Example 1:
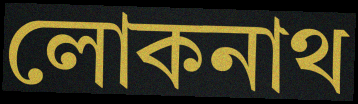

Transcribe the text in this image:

লোকনাথ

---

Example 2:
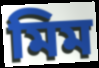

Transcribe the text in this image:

মিম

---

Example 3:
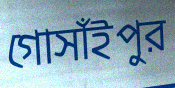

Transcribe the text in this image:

গোসাঁইপুর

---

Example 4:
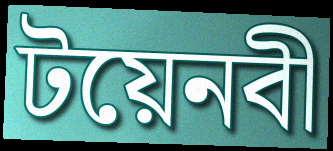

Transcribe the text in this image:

টয়েনবী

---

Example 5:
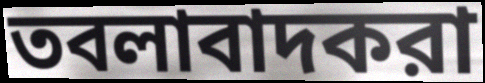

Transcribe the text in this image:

তবলাবাদকরা